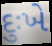
દુઃખે